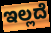
ಇಲ್ಲದೆ